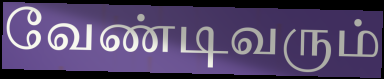
வேண்டிவரும்